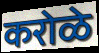
करोळे